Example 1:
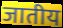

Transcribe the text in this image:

जातीय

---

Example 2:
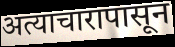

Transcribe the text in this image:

अत्याचारापासून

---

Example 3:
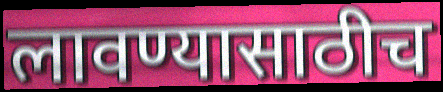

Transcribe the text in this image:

लावण्यासाठीच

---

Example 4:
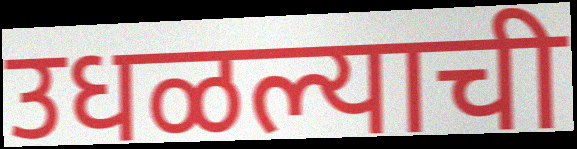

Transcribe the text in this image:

उधळल्याची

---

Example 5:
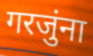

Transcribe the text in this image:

गरजुंना